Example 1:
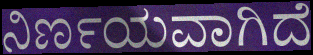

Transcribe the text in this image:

ನಿರ್ಣಯವಾಗಿದೆ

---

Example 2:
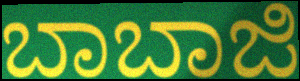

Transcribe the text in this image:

ಬಾಬಾಜಿ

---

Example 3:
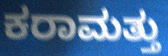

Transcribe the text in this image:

ಕರಾಮತ್ತು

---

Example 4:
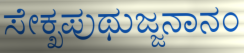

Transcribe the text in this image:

ಸೇಕ್ಖಪುಥುಜ್ಜನಾನಂ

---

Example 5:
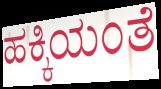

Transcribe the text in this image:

ಹಕ್ಕಿಯಂತೆ